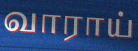
வாராய்